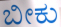
ಬೀಕು